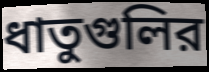
ধাতুগুলির